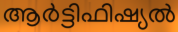
ആർട്ടിഫിഷ്യൽ